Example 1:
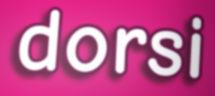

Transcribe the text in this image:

dorsi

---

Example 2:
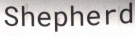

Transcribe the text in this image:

Shepherd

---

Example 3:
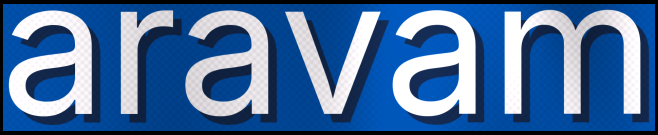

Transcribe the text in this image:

aravam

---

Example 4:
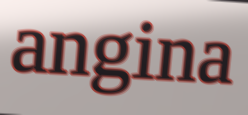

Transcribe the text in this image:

angina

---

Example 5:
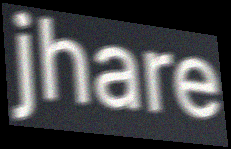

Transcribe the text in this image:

jhare